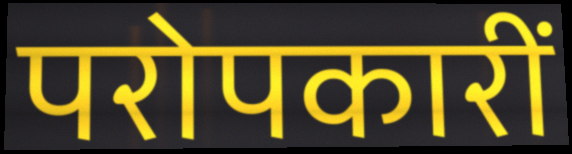
परोपकारीं